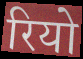
रियो